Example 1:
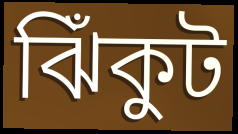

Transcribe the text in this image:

ঝিঁকুট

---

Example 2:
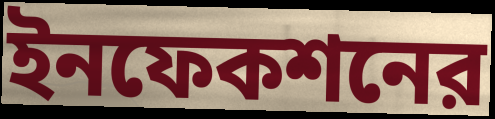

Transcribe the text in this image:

ইনফেকশনের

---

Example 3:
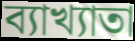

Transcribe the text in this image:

ব্যাখ্যাতা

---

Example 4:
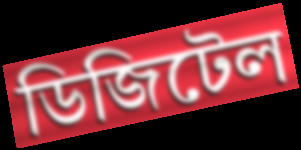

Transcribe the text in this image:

ডিজিটেল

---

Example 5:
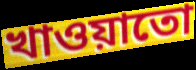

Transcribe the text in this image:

খাওয়াতো